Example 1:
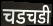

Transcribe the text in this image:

चडचडी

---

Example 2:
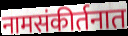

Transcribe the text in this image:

नामसंकीर्तनात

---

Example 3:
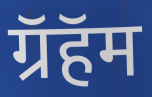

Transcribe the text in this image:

ग्रॅहॅम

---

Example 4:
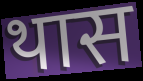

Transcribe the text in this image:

थास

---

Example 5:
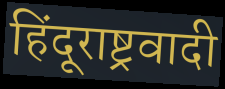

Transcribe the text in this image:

हिंदूराष्ट्रवादी